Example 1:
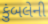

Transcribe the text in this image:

કુંબલેની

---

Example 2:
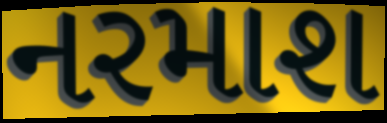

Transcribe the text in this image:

નરમાશ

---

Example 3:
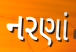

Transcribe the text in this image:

નરણાં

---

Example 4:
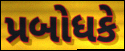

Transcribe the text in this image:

પ્રબોધકે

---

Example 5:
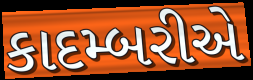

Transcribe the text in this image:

કાદમ્બરીએ